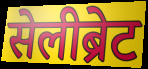
सेलीब्रेट